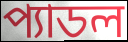
প্যাডল